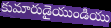
కుమారుడైయుండియు